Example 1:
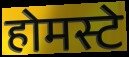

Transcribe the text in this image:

होमस्टे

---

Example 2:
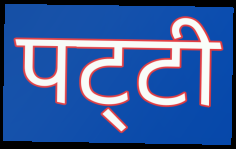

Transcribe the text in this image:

पट्‌टी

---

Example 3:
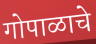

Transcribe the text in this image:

गोपाळाचे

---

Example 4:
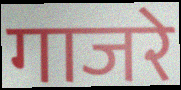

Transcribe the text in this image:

गाजरे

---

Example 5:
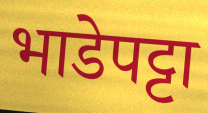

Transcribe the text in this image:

भाडेपट्टा